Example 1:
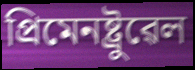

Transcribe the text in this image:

প্ৰিমেনষ্ট্ৰুৱেল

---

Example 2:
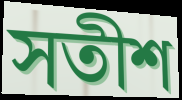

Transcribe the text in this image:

সতীশ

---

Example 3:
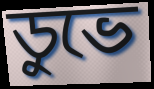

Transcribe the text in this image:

ডুভে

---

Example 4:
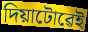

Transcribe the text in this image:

দিয়াটোৱেই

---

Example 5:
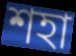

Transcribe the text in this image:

শহা